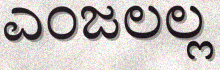
ಎಂಜಲಲ್ಲ